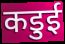
कडुई